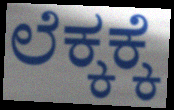
ಲೆಕ್ಕಕ್ಕೆ